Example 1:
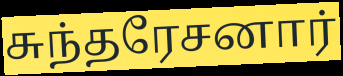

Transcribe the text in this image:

சுந்தரேசனார்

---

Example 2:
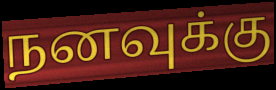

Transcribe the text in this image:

நனவுக்கு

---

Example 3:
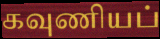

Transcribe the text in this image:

கவுணியப்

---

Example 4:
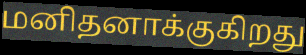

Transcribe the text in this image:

மனிதனாக்குகிறது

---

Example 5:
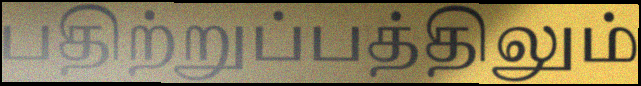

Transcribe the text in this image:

பதிற்றுப்பத்திலும்